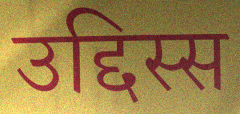
उद्दिस्स